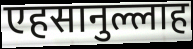
एहसानुल्लाह